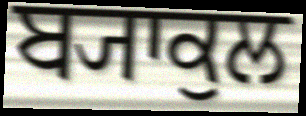
ਬ੍ਯਾਕੁਲ